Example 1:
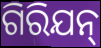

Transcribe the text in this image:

ଗିରିଯନ୍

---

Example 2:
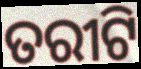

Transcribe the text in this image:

ତରୀଟି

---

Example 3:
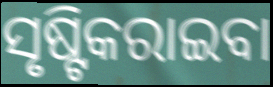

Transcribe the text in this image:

ସୃଷ୍ଟିକରାଇବା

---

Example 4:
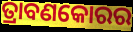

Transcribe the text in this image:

ତ୍ରାବଣକୋରର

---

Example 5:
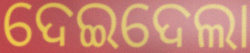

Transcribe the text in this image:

ଦେଇଦେଲା